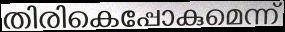
തിരികെപ്പോകുമെന്ന്